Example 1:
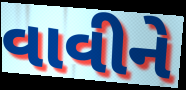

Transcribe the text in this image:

વાવીને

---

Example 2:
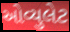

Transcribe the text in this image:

ઓવ્યુલેટ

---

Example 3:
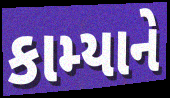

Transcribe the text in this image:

કામ્યાને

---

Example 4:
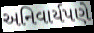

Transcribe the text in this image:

અનિવાર્યપણે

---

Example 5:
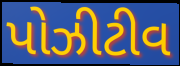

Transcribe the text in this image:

પોઝીટીવ